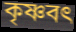
কৃষ্ণবৎ